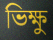
ভিক্ষু